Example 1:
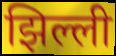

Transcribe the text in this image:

झिल्ली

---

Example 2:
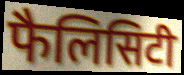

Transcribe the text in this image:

फैलिसिटी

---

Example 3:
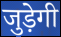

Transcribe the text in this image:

जुड़ेगी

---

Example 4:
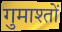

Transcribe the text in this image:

गुमाश्तों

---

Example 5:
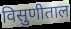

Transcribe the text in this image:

विसुणीताल